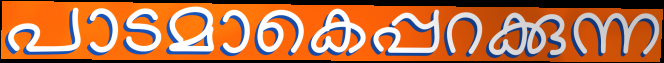
പാടമാകെപ്പറക്കുന്ന